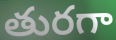
తురగా